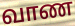
வாண